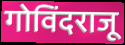
गोविंदराजू